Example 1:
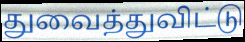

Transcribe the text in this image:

துவைத்துவிட்டு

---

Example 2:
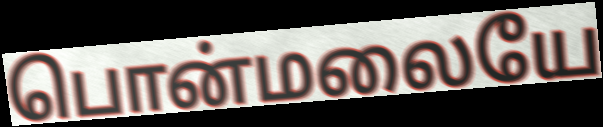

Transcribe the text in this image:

பொன்மலையே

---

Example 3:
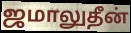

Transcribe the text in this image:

ஜமாலுதீன்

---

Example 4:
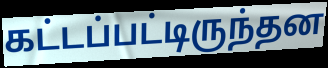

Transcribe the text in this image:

கட்டப்பட்டிருந்தன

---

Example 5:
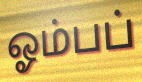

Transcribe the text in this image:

ஓம்பப்